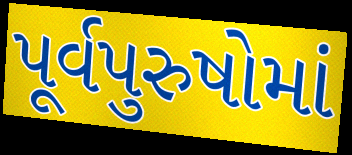
પૂર્વપુરુષોમાં